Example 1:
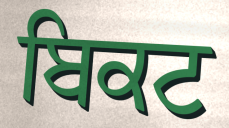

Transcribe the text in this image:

ਬਿਕਟ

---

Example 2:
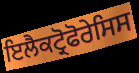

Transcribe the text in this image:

ਇਲੈਕਟ੍ਰੋਫੋਰੇਸਿਸ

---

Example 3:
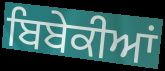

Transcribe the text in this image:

ਬਿਬੇਕੀਆਂ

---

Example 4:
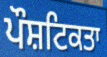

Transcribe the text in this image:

ਪੌਸ਼ਟਿਕਤਾ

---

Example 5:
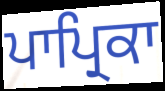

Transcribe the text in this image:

ਪਾਪ੍ਰਿਕਾ